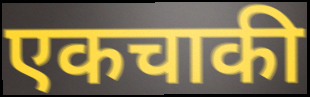
एकचाकी